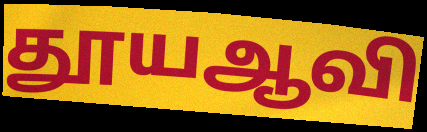
தூயஆவி